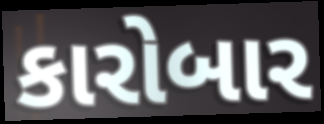
કારોબાર